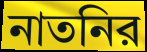
নাতনির